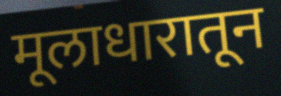
मूलाधारातून